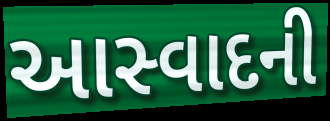
આસ્વાદની